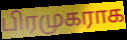
பிரமுகராக